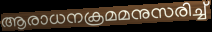
ആരാധനക്രമമനുസരിച്ച്